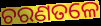
ଚରଣତଳେ